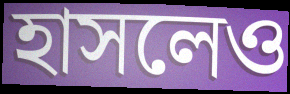
হাসলেও